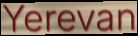
Yerevan